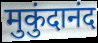
मुकुंदानंद